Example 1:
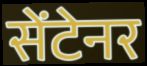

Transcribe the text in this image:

सेंटेनर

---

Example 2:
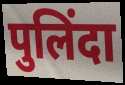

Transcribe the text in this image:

पुलिंदा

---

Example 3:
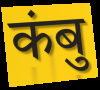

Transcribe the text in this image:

कंबु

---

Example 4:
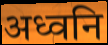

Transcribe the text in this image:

अध्वनि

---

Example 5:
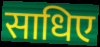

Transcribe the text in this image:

साधिए